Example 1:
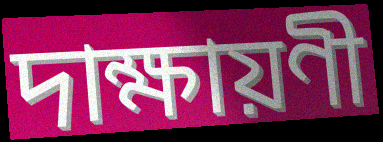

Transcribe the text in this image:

দাক্ষায়ণী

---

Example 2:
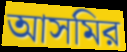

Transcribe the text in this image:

আসমির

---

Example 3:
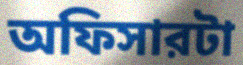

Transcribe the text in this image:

অফিসারটা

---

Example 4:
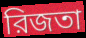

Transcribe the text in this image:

রিজতা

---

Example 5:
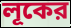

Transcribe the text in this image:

লূকের